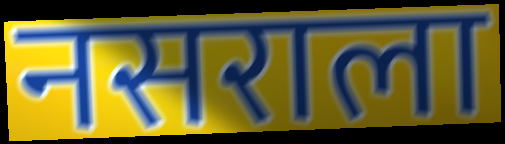
नसराला